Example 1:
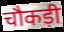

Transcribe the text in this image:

चौकड़ी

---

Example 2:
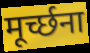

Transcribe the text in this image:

मूर्च्छना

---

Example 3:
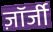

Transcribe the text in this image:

ज़ॉर्जी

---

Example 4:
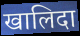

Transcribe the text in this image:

खालिदा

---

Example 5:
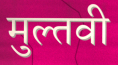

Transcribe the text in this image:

मुल्तवी